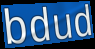
bdud